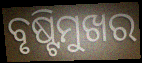
ବୃଷ୍ଟିମୁଖର